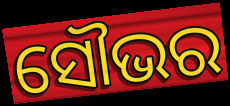
ସୌଭର